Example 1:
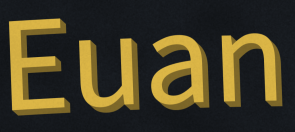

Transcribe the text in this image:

Euan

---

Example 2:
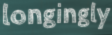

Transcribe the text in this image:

longingly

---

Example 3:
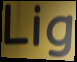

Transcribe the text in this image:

Lig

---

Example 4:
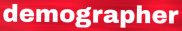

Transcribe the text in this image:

demographer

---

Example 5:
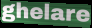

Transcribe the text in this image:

ghelare